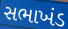
સભાખંડ